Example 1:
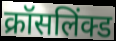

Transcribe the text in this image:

क्रॉसलिंक्ड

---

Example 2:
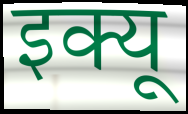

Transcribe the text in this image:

इक्यू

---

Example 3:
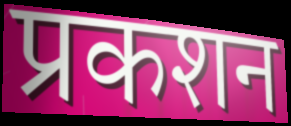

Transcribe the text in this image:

प्रकशन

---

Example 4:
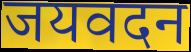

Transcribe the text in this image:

जयवदन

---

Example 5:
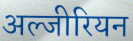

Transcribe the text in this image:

अल्जीरियन